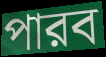
পারব